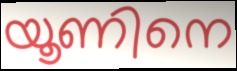
യൂണിനെ